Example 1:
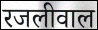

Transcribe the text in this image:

रजलीवाल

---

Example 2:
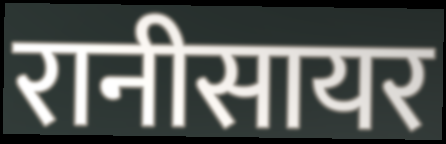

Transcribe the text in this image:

रानीसायर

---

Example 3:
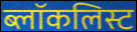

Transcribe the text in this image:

ब्लॉकलिस्ट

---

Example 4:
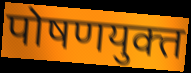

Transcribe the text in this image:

पोषणयुक्‍त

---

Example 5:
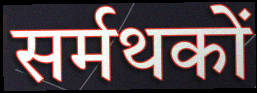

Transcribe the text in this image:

सर्मथकों